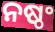
ନଷ୍ଠଂ